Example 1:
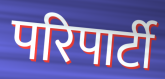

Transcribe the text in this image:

परिपार्टी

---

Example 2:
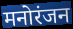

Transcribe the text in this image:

मनोरंजन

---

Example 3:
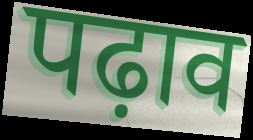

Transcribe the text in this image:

पढ़ाव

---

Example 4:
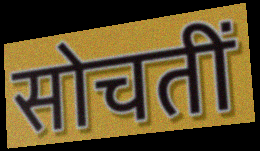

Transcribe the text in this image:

सोचतीं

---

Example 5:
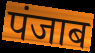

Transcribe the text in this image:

पंजाब